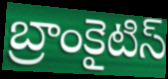
బ్రాంకైటిస్